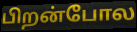
பிறன்போல